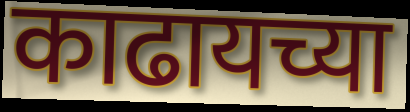
काढायच्या